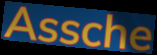
Assche